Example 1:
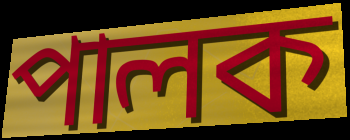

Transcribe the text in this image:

পালক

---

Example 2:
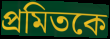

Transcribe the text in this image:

প্রমিতকে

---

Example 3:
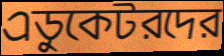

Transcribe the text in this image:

এডুকেটরদের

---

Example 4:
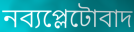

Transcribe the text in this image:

নব্যপ্লেটোবাদ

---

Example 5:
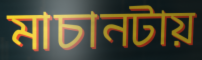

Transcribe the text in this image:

মাচানটায়